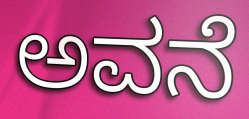
ಅವನೆ